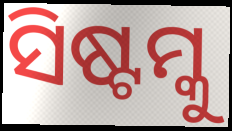
ସିଷ୍ଟମ୍କୁ